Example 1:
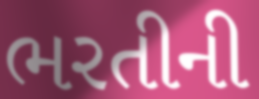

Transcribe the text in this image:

ભરતીની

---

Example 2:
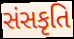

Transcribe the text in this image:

સંસકૃતિ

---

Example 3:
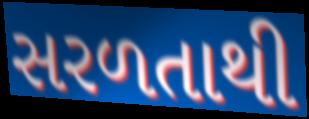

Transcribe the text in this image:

સરળતાથી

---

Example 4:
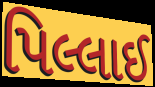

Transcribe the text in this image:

પિલ્લાઈ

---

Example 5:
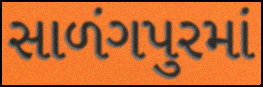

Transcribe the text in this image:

સાળંગપુરમાં